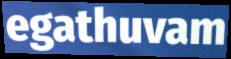
egathuvam